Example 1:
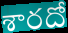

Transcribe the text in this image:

శారదో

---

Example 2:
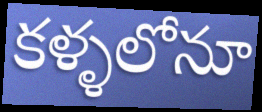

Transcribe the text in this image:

కళ్ళలోనూ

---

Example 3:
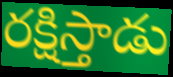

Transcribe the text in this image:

రక్షిస్తాడు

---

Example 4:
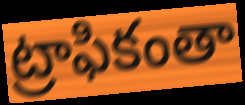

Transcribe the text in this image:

ట్రాఫికంతా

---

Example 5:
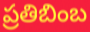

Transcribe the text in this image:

ప్రతిబింబ